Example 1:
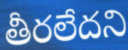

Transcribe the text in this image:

తీరలేదని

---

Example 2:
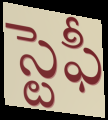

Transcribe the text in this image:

స్టెఫీ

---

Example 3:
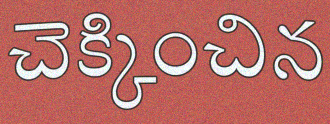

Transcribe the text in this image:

చెక్కించిన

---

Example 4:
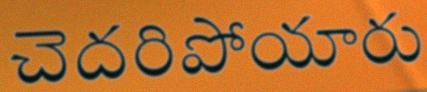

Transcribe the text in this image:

చెదరిపోయారు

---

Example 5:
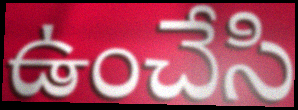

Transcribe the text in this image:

ఉంచేసి